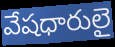
వేషధారులై